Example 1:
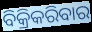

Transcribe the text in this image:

ବିକ୍ରିକରିବାର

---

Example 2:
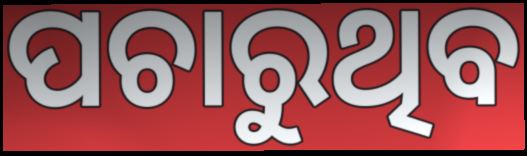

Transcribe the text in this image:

ପଚାରୁଥିବ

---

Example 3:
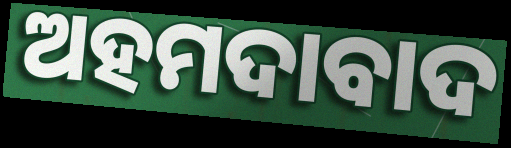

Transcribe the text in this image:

ଅହମଦାବାଦ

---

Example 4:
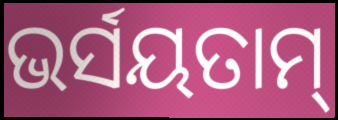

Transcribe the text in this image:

ଭର୍ସୟତାମ୍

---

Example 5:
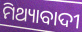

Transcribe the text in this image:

ମିଥ୍ୟାବାଦୀ